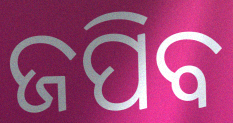
ଜପିବ